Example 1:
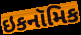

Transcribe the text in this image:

ઇકનૉમિક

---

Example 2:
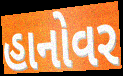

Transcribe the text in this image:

હાનોવર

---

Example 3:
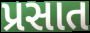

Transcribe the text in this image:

પ્રસાત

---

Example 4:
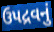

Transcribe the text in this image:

ઉપદ્રવનું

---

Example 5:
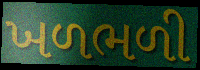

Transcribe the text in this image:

ખળભળી